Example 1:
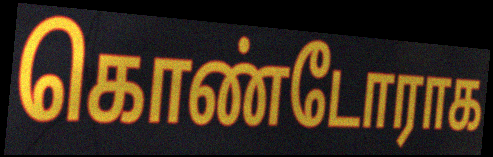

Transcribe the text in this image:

கொண்டோராக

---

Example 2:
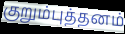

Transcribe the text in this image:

குறும்புத்தனம்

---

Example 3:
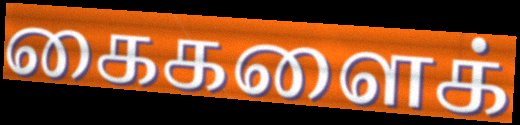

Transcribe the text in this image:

கைகளைக்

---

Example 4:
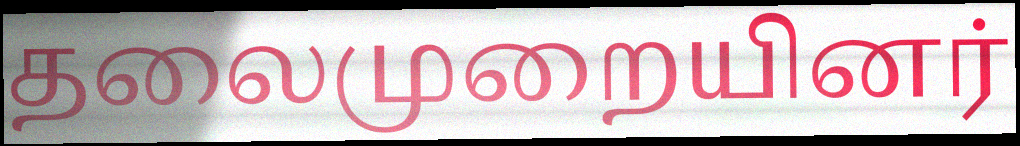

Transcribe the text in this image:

தலைமுறையினர்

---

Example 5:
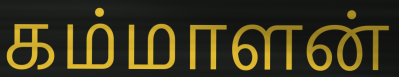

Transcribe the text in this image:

கம்மாளன்